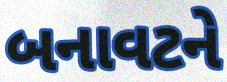
બનાવટને